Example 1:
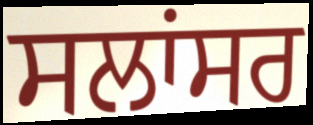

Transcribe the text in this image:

ਸਲਾਂਸਰ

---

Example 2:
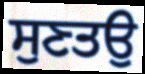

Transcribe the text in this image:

ਸੁਣਤਉ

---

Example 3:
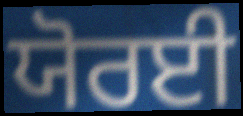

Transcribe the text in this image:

ਯੋਰਈ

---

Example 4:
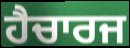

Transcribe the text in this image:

ਹੈਚਾਰਜ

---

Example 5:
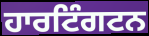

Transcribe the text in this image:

ਹਾਰਟਿੰਗਟਨ